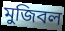
মুজিবল